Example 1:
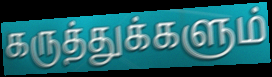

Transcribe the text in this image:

கருத்துக்களும்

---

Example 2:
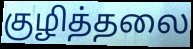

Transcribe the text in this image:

குழித்தலை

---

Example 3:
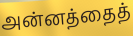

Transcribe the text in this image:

அன்னத்தைத்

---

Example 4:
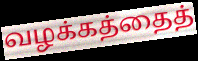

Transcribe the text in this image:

வழக்கத்தைத்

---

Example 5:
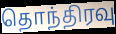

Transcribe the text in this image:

தொந்திரவு